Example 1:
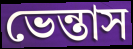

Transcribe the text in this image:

ভেন্তাস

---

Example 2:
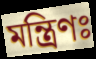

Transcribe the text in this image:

মন্ত্রিণঃ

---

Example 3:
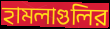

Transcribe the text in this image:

হামলাগুলির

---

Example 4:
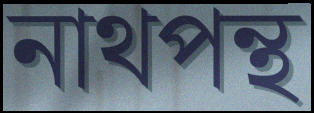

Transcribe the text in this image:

নাথপন্থ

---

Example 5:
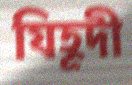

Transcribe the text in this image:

যিহূদী